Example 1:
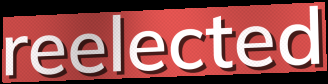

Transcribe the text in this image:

reelected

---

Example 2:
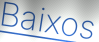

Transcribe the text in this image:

Baixos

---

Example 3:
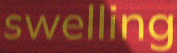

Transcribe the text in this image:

swelling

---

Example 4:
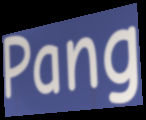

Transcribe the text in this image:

Pang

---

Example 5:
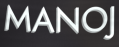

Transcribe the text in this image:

MANOJ